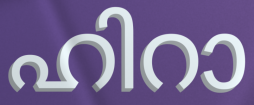
ഹിറാ